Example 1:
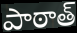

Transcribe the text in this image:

పాఠాత్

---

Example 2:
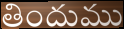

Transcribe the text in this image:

తిందుము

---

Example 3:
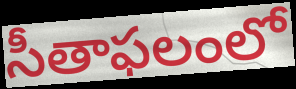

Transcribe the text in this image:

సీతాఫలంలో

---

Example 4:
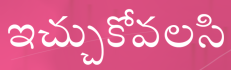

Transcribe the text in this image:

ఇచ్చుకోవలసి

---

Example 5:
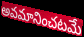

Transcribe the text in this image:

అవమానించటమే